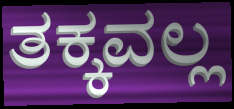
ತಕ್ಕವಲ್ಲ